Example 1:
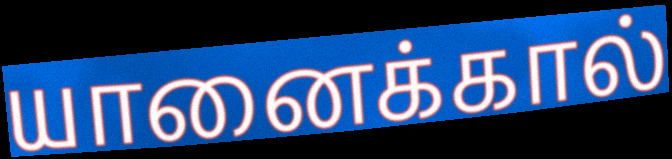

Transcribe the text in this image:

யானைக்கால்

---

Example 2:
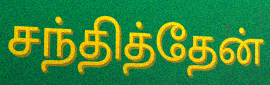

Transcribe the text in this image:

சந்தித்தேன்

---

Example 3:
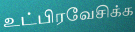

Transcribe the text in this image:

உட்பிரவேசிக்க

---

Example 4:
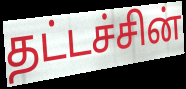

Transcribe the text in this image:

தட்டச்சின்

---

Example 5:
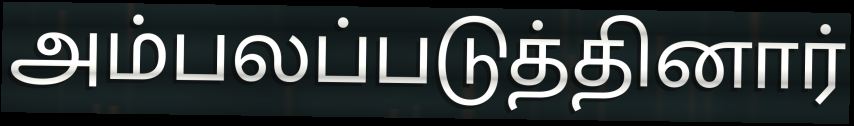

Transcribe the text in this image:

அம்பலப்படுத்தினார்